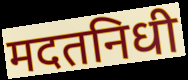
मदतनिधी